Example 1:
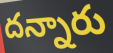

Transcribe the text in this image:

దన్నారు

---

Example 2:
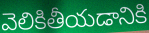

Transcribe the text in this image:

వెలికితీయడానికి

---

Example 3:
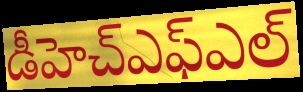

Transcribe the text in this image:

డీహెచ్ఎఫ్ఎల్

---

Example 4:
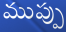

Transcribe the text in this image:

ముప్పు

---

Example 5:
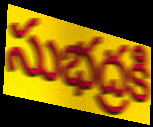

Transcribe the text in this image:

సుభద్రకి